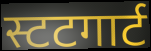
स्टटगार्ट